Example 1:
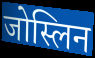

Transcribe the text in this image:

जोस्लिन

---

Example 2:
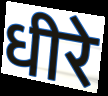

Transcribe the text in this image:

धीरे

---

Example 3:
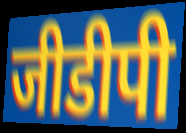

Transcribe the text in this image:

जीडीपी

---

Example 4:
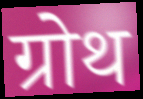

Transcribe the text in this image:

ग्रोथ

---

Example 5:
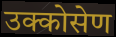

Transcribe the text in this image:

उक्कोसेण